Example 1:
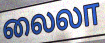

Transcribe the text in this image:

லைலா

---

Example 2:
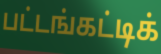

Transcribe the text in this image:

பட்டங்கட்டிக்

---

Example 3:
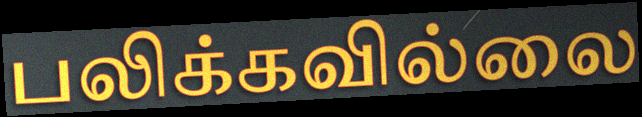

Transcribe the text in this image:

பலிக்கவில்லை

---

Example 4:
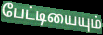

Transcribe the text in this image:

பேட்டியையும்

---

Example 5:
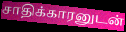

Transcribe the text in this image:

சாதிக்காரனுடன்